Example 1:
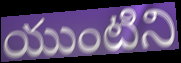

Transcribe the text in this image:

యుంటిని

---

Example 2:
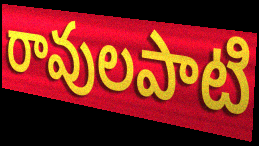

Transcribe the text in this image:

రావులపాటి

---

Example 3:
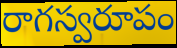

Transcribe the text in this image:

రాగస్వరూపం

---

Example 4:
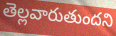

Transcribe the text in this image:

తెల్లవారుతుందని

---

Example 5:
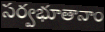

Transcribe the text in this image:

సర్వభూతానాం